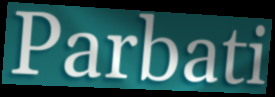
Parbati